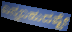
ಎನ್ನಬಹುದಷ್ಟೇ